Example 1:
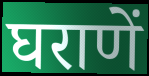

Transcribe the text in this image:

घराणें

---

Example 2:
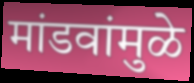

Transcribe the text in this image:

मांडवांमुळे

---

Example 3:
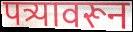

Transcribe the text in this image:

पत्र्यावरून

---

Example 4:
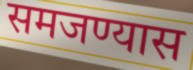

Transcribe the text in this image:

समजण्यास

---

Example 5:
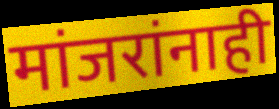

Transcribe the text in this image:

मांजरांनाही